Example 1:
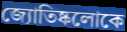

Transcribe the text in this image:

জ্যোতিষ্কলোকে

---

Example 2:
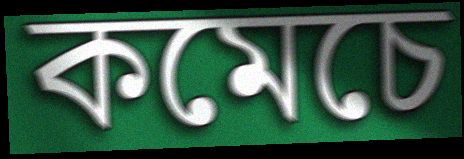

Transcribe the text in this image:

কমেচে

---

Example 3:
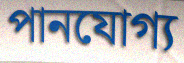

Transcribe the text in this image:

পানযোগ্য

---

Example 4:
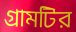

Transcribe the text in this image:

গ্রামটির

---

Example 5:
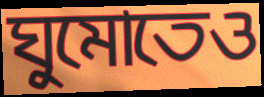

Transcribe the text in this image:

ঘুমোতেও